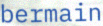
bermain